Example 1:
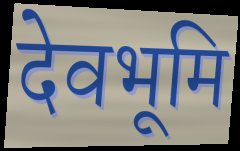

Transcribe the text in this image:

देवभूमि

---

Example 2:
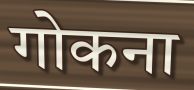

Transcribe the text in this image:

गोकना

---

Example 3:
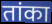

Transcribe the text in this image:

तांका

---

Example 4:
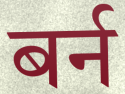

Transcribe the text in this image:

बर्न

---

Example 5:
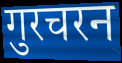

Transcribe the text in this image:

गुरचरन